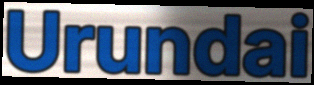
Urundai